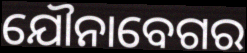
ଯୌନାବେଗର